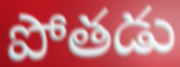
పోతడు